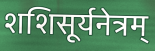
शशिसूर्यनेत्रम्